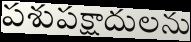
పశుపక్షాదులను